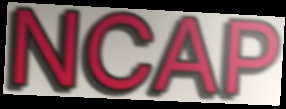
NCAP